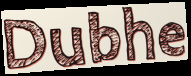
Dubhe